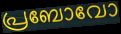
പ്രബോവോ